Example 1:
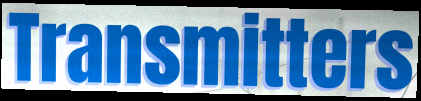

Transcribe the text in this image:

Transmitters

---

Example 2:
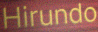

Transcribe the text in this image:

Hirundo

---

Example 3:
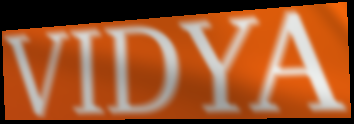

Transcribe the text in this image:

VIDYA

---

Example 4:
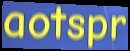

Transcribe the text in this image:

aotspr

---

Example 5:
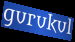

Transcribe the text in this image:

gurukul